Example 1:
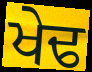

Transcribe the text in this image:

ਖੇਢ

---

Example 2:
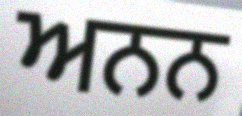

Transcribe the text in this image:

ਅਨਨ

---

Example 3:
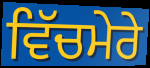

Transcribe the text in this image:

ਵਿੱਚਮੇਰੇ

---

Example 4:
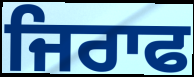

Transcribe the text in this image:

ਜਿਰਾਫ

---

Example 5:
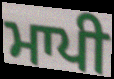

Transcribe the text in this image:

ਮਾਪੀ